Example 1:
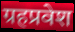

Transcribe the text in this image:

ग्रहप्रवेश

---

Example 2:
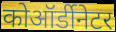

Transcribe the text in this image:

कोऑर्डीनेटर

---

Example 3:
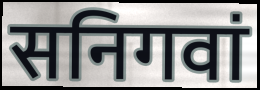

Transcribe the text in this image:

सनिगवां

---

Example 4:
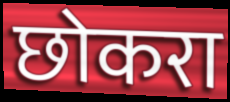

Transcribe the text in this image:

छोकरा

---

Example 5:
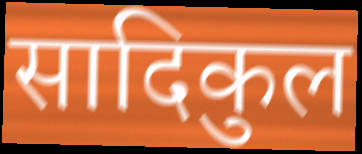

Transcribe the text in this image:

सादिकुल